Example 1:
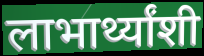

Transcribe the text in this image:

लाभार्थ्यांशी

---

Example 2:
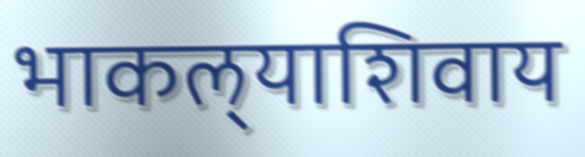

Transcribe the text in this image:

भाकल्याशिवाय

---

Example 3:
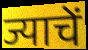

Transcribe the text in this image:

ज्याचें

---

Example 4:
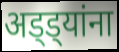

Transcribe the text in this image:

अड्ड्यांना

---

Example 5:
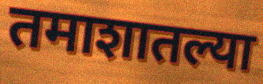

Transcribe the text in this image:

तमाशातल्या